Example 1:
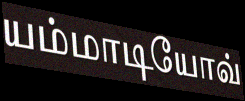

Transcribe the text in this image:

யம்மாடியோவ்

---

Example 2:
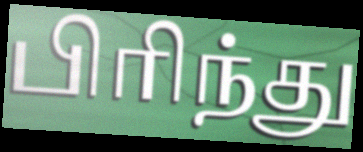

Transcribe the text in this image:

பிரிந்து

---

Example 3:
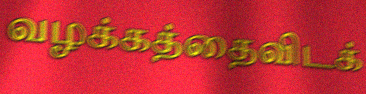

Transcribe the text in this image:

வழக்கத்தைவிடக்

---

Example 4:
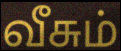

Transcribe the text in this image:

வீசும்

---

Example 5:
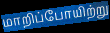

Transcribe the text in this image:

மாறிப்போயிற்று